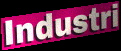
Industri